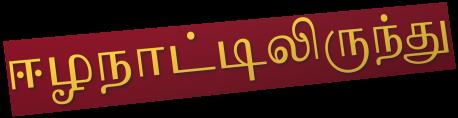
ஈழநாட்டிலிருந்து